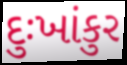
દુઃખાંકુર